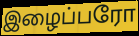
இழைப்பரோ